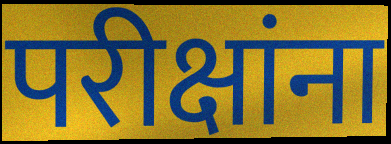
परीक्षांना